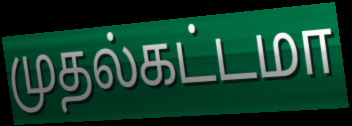
முதல்கட்டமா